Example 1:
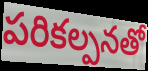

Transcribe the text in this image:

పరికల్పనతో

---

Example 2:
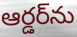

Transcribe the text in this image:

ఆర్డర్‌ను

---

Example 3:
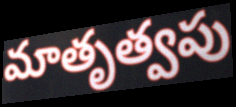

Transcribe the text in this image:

మాతృత్వపు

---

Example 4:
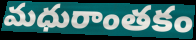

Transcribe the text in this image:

మధురాంతకం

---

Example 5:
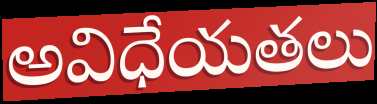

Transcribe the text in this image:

అవిధేయతలు